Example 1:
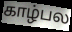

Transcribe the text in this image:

காழ்பல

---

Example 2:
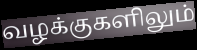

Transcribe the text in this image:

வழக்குகளிலும்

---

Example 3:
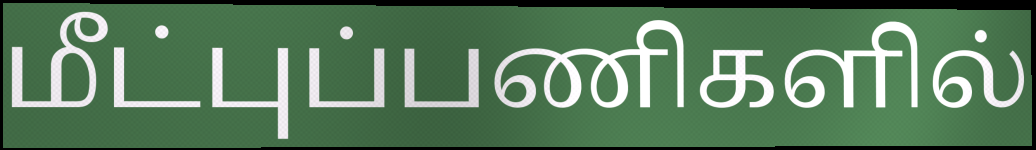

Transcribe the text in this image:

மீட்புப்பணிகளில்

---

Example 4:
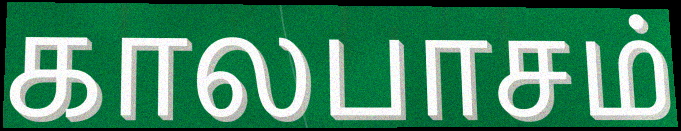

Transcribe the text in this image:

காலபாசம்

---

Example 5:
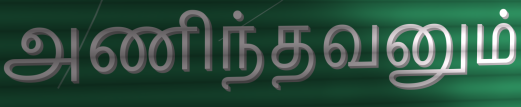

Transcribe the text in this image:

அணிந்தவனும்